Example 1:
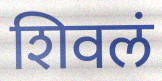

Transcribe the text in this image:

शिवलं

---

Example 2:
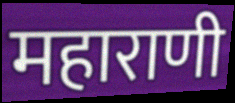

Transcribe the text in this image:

महाराणी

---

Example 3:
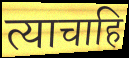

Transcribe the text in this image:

त्याचाहि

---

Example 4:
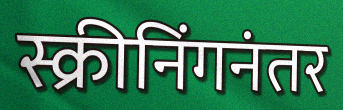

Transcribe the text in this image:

स्क्रीनिंगनंतर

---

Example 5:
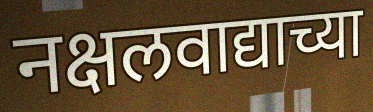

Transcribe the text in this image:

नक्षलवाद्याच्या